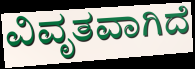
ವಿವೃತವಾಗಿದೆ